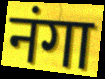
नंगा